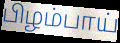
பிழம்பாய்